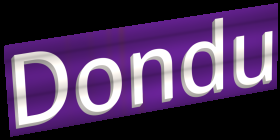
Dondu